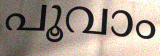
പൂവാം